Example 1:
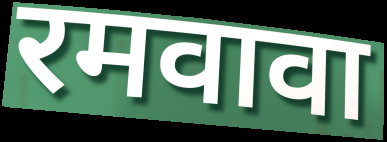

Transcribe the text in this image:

रमवावा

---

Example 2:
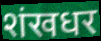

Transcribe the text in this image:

शंखधर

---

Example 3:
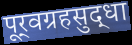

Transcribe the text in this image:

पूर्वग्रहसुद्धा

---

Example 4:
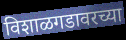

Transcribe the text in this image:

विशाळगडावरच्या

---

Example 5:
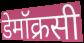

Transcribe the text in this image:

डेमॉक्रसी